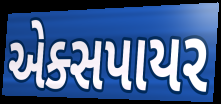
એક્સપાયર